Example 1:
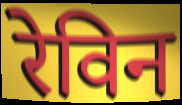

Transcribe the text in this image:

रेविन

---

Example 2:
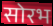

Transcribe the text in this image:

सोरभ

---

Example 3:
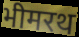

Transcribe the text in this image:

भीमरथ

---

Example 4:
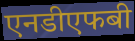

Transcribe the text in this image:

एनडीएफबी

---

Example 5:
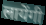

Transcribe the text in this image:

लायेंगी